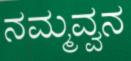
ನಮ್ಮವ್ವನ